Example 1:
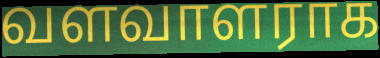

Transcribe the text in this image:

வளவாளராக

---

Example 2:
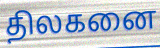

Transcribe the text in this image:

திலகனை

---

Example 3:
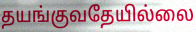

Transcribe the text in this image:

தயங்குவதேயில்லை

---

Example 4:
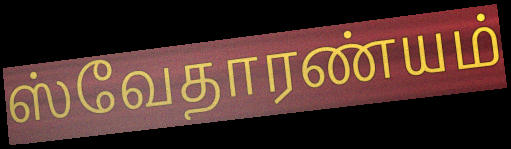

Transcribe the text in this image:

ஸ்வேதாரண்யம்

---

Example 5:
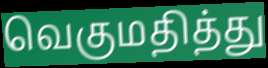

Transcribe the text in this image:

வெகுமதித்து